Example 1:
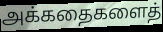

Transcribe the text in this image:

அக்கதைகளைத்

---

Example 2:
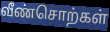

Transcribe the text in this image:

வீண்சொற்கள்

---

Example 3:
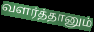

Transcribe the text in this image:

வளர்த்தானும்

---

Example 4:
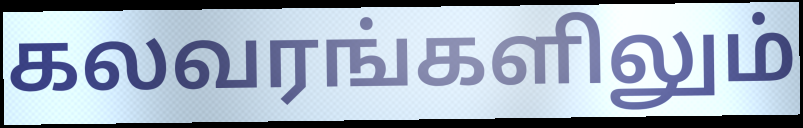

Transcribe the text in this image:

கலவரங்களிலும்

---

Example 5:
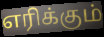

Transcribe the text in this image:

எரிக்கும்